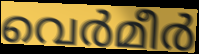
വെർമീർ